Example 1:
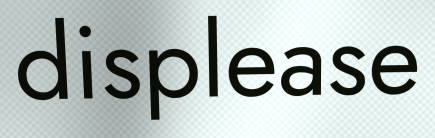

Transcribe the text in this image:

displease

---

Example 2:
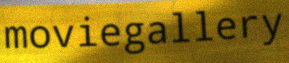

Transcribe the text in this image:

moviegallery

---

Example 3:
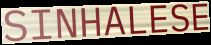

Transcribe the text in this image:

SINHALESE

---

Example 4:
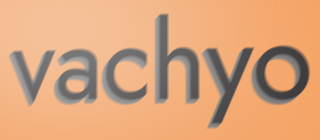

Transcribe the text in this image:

vachyo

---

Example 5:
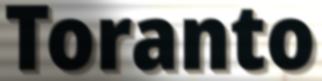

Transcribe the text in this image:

Toranto